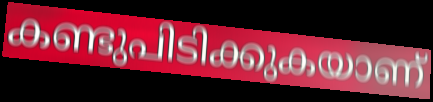
കണ്ടുപിടിക്കുകയാണ്